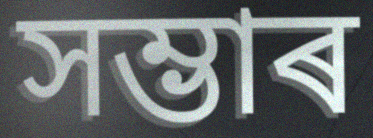
সম্ভাৰ